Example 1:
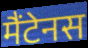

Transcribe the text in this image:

मैंटेनस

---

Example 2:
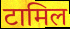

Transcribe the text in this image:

टामिल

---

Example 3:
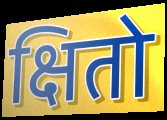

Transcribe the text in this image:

क्षितो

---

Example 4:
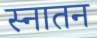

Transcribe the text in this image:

स्नातन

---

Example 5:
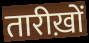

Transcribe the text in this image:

तारीख़ों